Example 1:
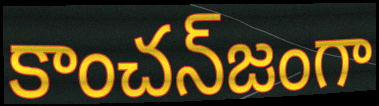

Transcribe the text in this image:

కాంచన్‌జంగా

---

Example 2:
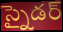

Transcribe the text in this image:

స్నైడర్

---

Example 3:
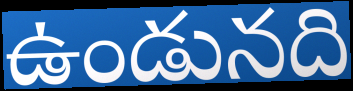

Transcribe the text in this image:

ఉండునది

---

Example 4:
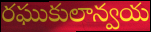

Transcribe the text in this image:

రఘుకులాన్వయ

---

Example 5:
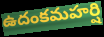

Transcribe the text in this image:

ఉదంకమహర్షి